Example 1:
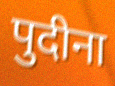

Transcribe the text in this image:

पुदीना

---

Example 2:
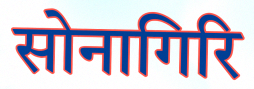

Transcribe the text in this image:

सोनागिरि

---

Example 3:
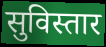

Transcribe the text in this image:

सुविस्तार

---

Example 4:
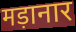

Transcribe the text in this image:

मड़ानार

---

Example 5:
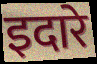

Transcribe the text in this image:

इदारे